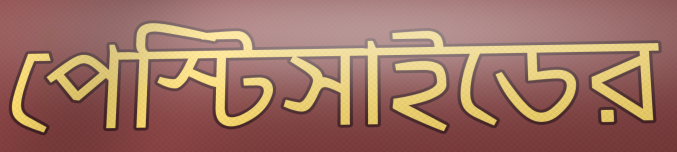
পেস্টিসাইডের